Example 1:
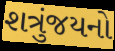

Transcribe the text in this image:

શત્રુંજયનો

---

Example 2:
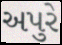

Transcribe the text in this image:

અપુરે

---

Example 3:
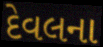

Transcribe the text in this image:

દેવલના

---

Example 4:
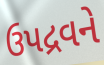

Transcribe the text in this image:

ઉપદ્રવને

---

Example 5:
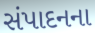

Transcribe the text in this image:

સંપાદનના